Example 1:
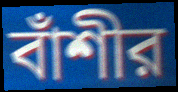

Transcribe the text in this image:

বাঁশীর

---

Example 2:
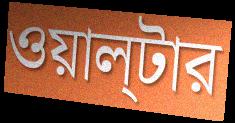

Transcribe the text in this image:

ওয়াল্‌টার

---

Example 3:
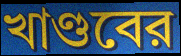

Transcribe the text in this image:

খাণ্ডবের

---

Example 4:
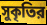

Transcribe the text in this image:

সুকৃতির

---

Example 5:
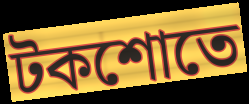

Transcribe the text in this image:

টকশোতে